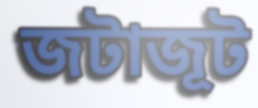
জটাজূট